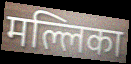
मल्लिका